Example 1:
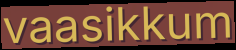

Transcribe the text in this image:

vaasikkum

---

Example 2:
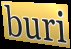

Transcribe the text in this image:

buri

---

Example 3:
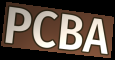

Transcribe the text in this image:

PCBA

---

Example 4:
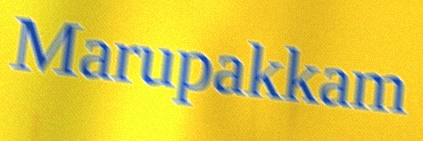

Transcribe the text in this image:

Marupakkam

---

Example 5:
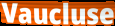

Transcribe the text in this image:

Vaucluse